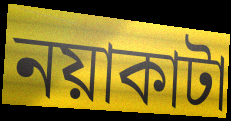
নয়াকাটা